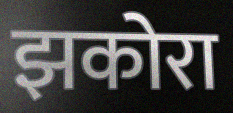
झकोरा